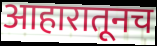
आहारातूनच